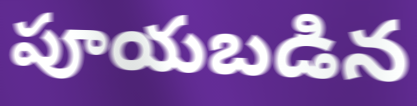
పూయబడిన